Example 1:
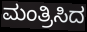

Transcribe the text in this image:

ಮಂತ್ರಿಸಿದ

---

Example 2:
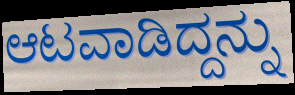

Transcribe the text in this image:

ಆಟವಾಡಿದ್ದನ್ನು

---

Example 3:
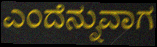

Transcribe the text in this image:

ಎಂದೆನ್ನುವಾಗ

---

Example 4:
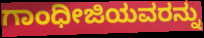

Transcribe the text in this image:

ಗಾಂಧೀಜಿಯವರನ್ನು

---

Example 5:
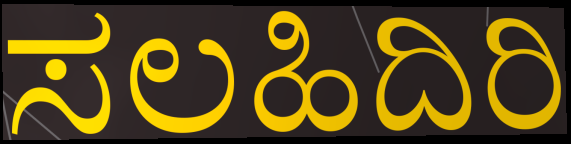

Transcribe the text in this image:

ಸಲಹಿದಿರಿ